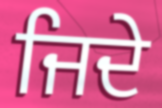
ਜਿਦੇ